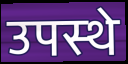
उपस्थे